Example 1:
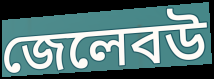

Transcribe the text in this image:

জেলেবউ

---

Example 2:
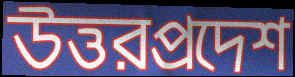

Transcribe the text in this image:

উত্তরপ্রদেশ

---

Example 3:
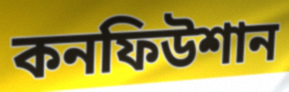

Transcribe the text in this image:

কনফিউশান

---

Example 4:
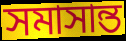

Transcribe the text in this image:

সমাসান্ত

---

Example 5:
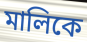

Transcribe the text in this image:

মালিকে